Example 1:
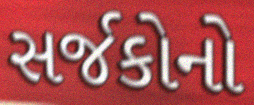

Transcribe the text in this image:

સર્જકોનો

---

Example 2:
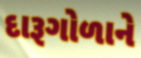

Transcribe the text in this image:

દારૂગોળાને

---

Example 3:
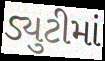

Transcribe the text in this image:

ડ્યુટીમાં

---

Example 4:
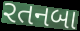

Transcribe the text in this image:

રતનબા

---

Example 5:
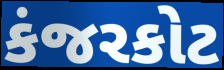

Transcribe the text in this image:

કંજરકોટ